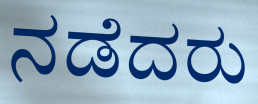
ನಡೆದರು